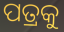
ପତ୍ରକୁ